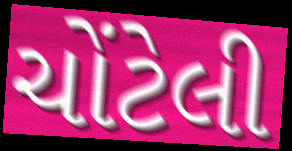
ચોંટેલી